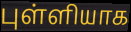
புள்ளியாக